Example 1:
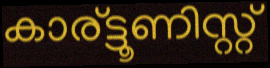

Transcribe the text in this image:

കാര്ട്ടൂണിസ്റ്റ്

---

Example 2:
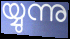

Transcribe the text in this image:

യ്യുന്നു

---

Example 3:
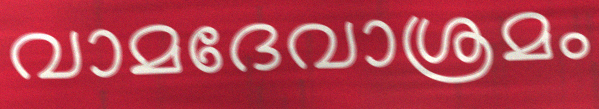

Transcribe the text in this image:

വാമദേവാശ്രമം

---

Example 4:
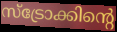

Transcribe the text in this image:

സ്ട്രോക്കിന്റെ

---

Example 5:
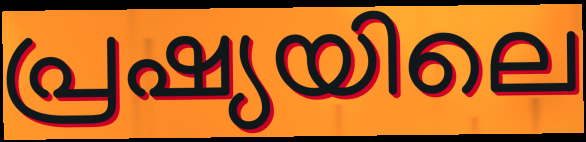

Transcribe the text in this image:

പ്രഷ്യയിലെ